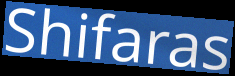
Shifaras